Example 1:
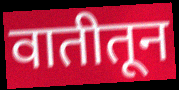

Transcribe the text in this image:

वातीतून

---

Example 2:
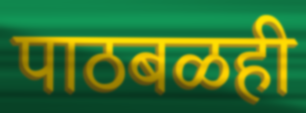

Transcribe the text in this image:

पाठबळही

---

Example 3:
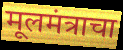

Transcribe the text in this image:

मूलमंत्राचा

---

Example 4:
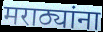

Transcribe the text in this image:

मराठ्यांना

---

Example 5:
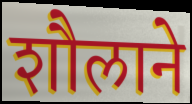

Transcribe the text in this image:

शौलाने